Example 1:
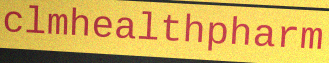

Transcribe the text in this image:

clmhealthpharm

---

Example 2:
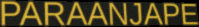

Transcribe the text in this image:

PARAANJAPE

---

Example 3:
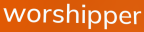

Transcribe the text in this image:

worshipper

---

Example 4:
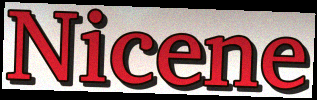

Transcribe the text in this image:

Nicene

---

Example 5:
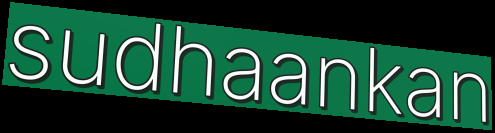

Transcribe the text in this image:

sudhaankan